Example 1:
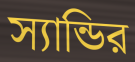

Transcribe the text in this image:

স্যান্ডির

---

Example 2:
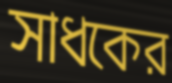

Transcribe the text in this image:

সাধকের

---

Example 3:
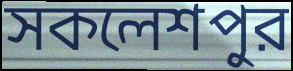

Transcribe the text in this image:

সকলেশপুর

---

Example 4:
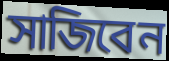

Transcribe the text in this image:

সাজিবেন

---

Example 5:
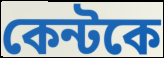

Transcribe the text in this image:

কেন্টকে